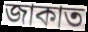
জাকাত